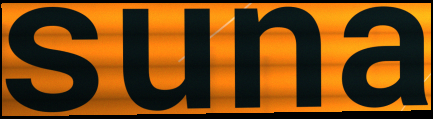
suna